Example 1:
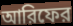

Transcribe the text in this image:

আরিফের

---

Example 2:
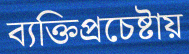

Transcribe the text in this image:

ব্যক্তিপ্রচেষ্টায়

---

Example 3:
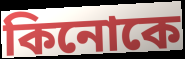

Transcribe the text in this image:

কিনোকে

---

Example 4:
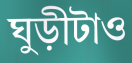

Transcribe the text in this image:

ঘুড়ীটাও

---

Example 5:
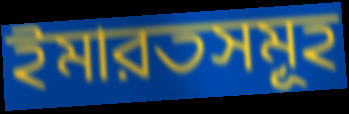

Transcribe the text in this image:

ইমারতসমূহ